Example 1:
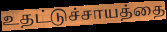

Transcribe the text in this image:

உதட்டுச்சாயத்தை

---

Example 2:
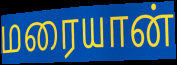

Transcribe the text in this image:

மரையான்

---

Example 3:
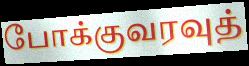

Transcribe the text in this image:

போக்குவரவுத்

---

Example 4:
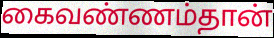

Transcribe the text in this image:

கைவண்ணம்தான்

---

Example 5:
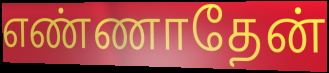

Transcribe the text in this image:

எண்ணாதேன்